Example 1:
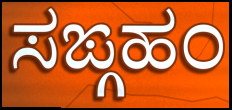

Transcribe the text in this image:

ಸಙ್ಗಹಂ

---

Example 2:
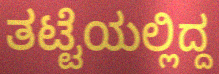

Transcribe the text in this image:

ತಟ್ಟೆಯಲ್ಲಿದ್ದ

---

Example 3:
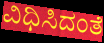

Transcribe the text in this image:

ವಿಧಿಸಿದಂತೆ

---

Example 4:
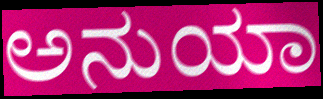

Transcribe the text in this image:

ಅನುಯಾ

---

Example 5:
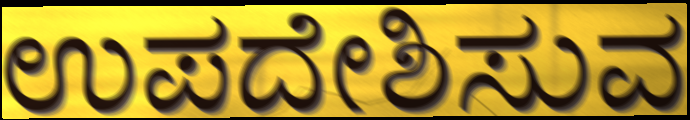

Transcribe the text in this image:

ಉಪದೇಶಿಸುವ